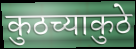
कुठच्याकुठे